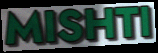
MISHTI